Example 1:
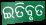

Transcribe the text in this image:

ଇତିବୃତ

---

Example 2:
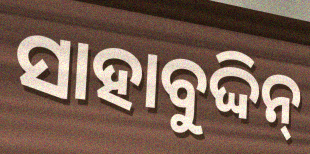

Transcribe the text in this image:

ସାହାବୁଦ୍ଦିନ୍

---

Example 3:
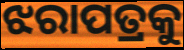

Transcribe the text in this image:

ଝରାପତ୍ରକୁ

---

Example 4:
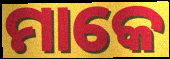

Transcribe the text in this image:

ମାକେ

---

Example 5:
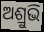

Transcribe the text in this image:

ଅଶ୍ରୁଭି